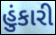
હુંકારી